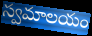
స్వమాలయం